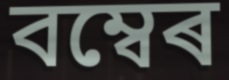
বম্বেৰ